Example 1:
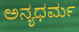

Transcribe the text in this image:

ಅನ್ಯಧರ್ಮ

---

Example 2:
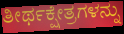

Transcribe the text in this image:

ತೀರ್ಥಕ್ಷೇತ್ರಗಳನ್ನು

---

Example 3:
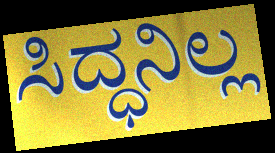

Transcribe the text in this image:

ಸಿದ್ಧನಿಲ್ಲ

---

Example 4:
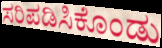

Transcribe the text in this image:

ಸರಿಪಡಿಸಿಕೊಂಡು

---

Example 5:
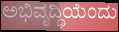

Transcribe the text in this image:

ಅಭಿವೃದ್ಧಿಯೆಂದು